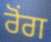
ਰੋਂਗ